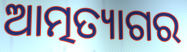
ଆତ୍ମତ୍ୟାଗର